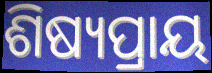
ଶିଷ୍ୟପ୍ରାୟ